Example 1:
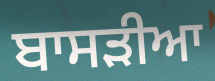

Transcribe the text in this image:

ਬਾਸੜੀਆ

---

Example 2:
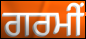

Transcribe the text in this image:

ਗਰਮੀਂ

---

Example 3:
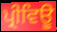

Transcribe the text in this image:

ਪ੍ਰੀਵਿਊ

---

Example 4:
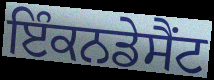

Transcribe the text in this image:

ਇੰਕਨਡੇਸੈਂਟ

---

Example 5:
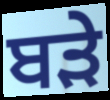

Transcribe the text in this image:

ਬਡ਼ੇ